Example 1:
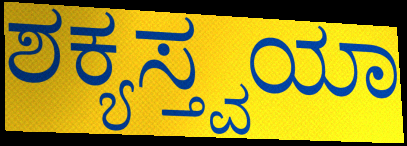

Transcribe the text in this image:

ಶಕ್ಯಸ್ತ್ವಯಾ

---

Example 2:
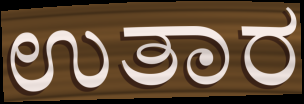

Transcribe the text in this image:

ಉತಾರ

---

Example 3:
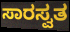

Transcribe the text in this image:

ಸಾರಸ್ವತ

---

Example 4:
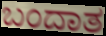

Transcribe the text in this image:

ಬಂದಾತ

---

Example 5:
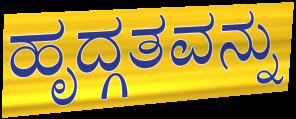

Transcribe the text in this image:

ಹೃದ್ಗತವನ್ನು